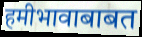
हमीभावाबाबत